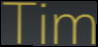
Tim